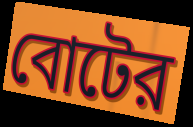
বোটের